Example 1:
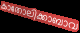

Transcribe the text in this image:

കാതോലിക്കാബാവ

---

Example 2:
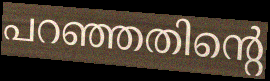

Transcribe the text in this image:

പറഞ്ഞതിന്റെ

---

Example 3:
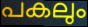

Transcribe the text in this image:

പകലും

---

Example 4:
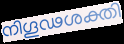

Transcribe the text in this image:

നിഗൂഢശക്തി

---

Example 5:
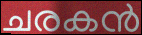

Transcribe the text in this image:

ചരകൻ